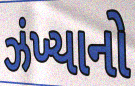
ઝંખ્યાનો